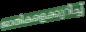
ജാതികളെക്കുറിച്ച്